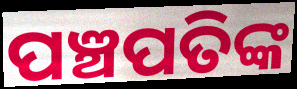
ପଞ୍ଚପତିଙ୍କ